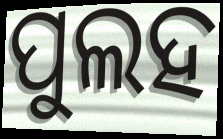
ପୁଲହ